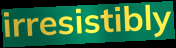
irresistibly